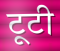
टूटी